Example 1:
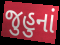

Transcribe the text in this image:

જુહુનાં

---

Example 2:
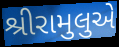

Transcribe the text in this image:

શ્રીરામુલુએ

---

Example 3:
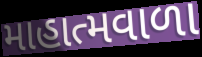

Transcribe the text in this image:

માહાત્મવાળા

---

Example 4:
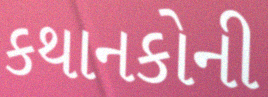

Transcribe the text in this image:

કથાનકોની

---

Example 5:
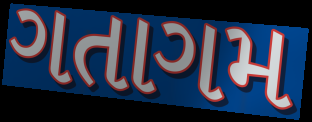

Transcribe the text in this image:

ગતાગમ